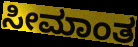
ಸೀಮಾಂತ